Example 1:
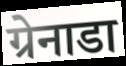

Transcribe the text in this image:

ग्रेनाडा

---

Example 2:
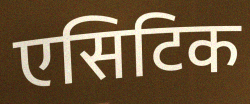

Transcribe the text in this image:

एसिटिक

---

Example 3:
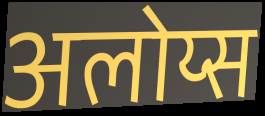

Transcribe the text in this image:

अलोय्स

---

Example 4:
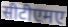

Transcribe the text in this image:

सीटीएमए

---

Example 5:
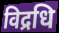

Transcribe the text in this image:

विद्रधि